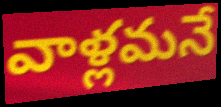
వాళ్లమనే